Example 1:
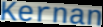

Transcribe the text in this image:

Kernan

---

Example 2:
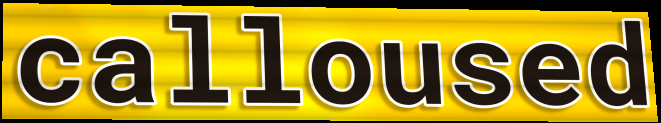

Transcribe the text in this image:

calloused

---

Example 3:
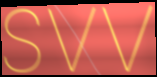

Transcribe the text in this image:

SVV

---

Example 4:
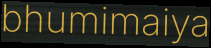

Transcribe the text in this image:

bhumimaiya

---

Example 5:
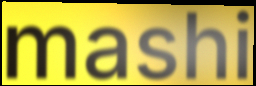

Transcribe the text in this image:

mashi